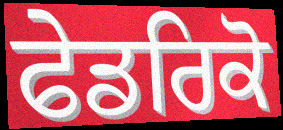
ਫੇਡਰਿਕੋ